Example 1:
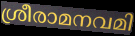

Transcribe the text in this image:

ശ്രീരാമനവമി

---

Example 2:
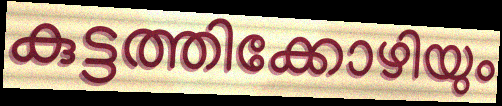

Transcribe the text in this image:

കുട്ടത്തിക്കോഴിയും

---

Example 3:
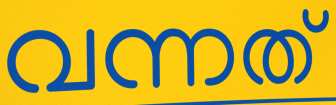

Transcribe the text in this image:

വന്നത്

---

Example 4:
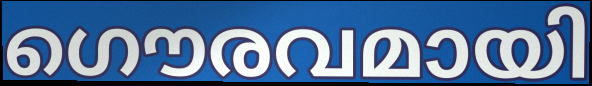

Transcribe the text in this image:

ഗൌരവമായി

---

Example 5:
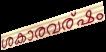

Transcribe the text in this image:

ശകാരവര്ഷം